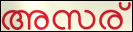
അസര്